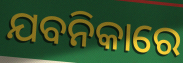
ଯବନିକାରେ